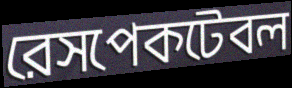
রেসপেকটেবল